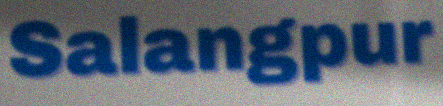
Salangpur